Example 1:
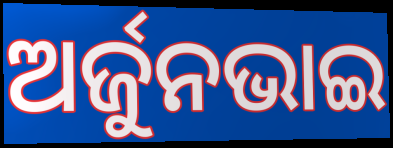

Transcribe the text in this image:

ଅର୍ଜୁନଭାଇ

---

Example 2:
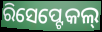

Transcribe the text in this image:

ରିସେପ୍ଟେକଲ୍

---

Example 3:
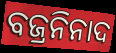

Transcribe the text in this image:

ବଜ୍ରନିନାଦ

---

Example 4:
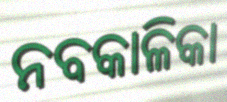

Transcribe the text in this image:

ନବକାଳିକା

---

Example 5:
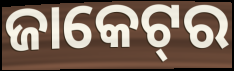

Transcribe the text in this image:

ଜାକେଟ୍‌ର